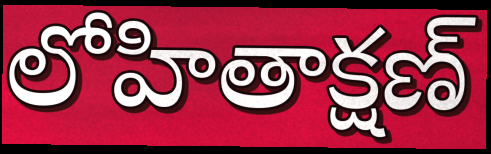
లోహితాక్షణ్